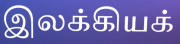
இலக்கியக்